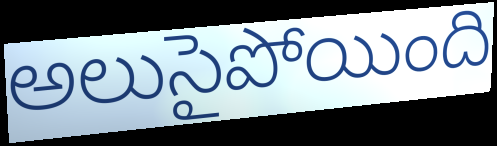
అలుసైపోయింది